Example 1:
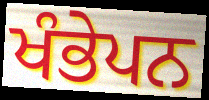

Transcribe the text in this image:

ਖੰਭੇਪਨ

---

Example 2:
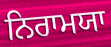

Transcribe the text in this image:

ਨਿਰਾਮਯਾ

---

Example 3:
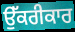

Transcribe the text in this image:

ਉੱਕਰੀਕਾਰ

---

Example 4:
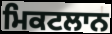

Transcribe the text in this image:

ਮਿਕਟਲਾਨ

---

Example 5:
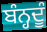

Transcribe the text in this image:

ਬੰਨ੍ਹਦੂੰ